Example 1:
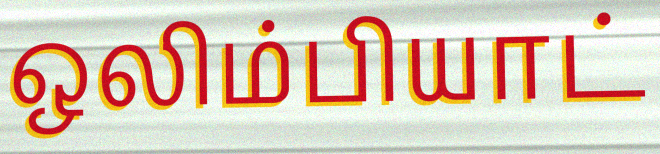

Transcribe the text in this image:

ஒலிம்பியாட்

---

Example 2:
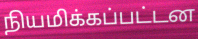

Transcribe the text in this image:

நியமிக்கப்பட்டன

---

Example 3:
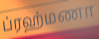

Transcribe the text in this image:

ப்ரஹ்மணா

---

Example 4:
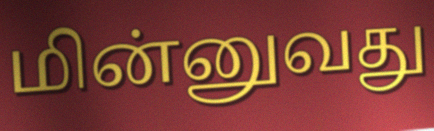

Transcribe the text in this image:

மின்னுவது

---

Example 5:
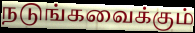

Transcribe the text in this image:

நடுங்கவைக்கும்